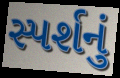
સ્પર્શનું